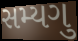
સમ્યગુ